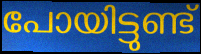
പോയിട്ടുണ്ട്